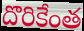
దొరికేంత